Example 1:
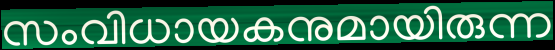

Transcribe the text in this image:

സംവിധായകനുമായിരുന്ന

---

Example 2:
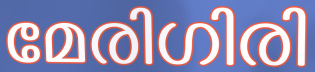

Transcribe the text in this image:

മേരിഗിരി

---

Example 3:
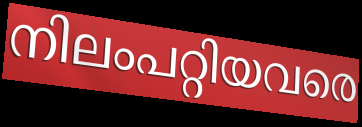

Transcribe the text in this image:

നിലംപറ്റിയവരെ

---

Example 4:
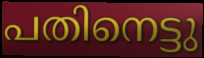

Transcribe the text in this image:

പതിനെട്ടു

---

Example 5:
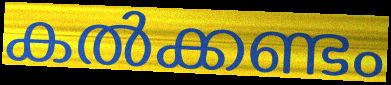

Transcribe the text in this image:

കൽക്കണ്ടം